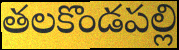
తలకొండపల్లి